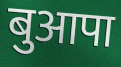
बुआपा